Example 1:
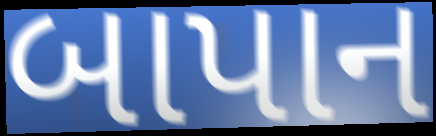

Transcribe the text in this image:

બાપાન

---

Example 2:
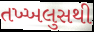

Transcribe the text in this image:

તખ્ખલુસથી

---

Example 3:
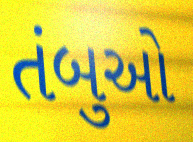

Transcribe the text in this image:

તંબુઓ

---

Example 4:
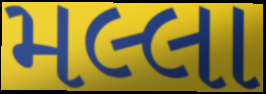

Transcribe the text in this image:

મલ્લા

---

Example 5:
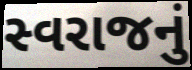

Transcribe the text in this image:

સ્વરાજનું